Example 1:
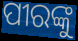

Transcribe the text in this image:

ପୀରଙ୍କୁ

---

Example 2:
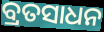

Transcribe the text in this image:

ବ୍ରତସାଧନ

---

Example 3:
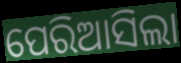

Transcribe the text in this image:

ପେରିଆସିଲା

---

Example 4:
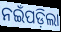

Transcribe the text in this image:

ନଇଁପଡ଼ିଲା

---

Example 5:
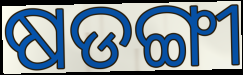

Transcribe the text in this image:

ଷଡଙ୍ଗୀ